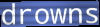
drowns